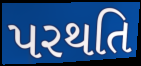
પરથતિ